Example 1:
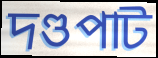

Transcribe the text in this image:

দণ্ডপাট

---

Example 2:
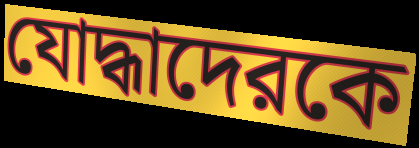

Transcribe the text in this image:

যোদ্ধাদেরকে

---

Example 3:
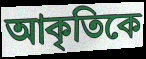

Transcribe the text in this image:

আকৃতিকে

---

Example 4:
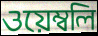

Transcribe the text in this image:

ওয়েম্বলি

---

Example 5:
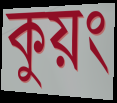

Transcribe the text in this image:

কুয়ং